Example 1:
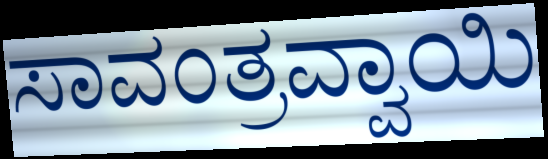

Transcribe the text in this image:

ಸಾವಂತ್ರವ್ವಾಯಿ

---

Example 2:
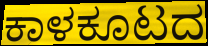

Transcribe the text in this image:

ಕಾಳಕೂಟದ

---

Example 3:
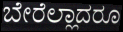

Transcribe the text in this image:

ಬೇರೆಲ್ಲಾದರೂ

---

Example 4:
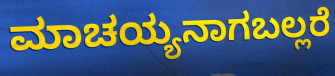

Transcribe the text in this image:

ಮಾಚಯ್ಯನಾಗಬಲ್ಲರೆ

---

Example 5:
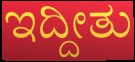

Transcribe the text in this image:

ಇದ್ದೀತು